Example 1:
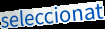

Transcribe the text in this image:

seleccionat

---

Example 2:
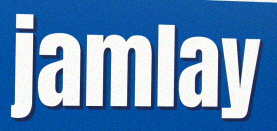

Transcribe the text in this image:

jamlay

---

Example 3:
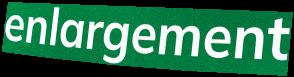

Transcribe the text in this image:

enlargement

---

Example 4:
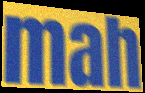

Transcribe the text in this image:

mah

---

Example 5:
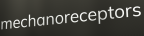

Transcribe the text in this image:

mechanoreceptors